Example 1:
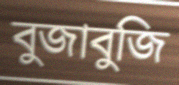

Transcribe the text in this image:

বুজাবুজি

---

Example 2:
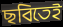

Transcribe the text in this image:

ছবিতেই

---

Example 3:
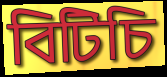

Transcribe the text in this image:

বিটিচি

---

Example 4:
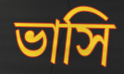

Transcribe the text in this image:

ভাসি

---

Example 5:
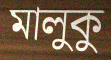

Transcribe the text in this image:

মালুকু